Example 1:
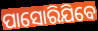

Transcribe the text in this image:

ପାସୋରିଯିବେ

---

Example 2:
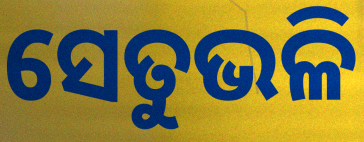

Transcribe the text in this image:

ସେତୁଭଳି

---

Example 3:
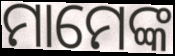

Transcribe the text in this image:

ମାମେଙ୍କ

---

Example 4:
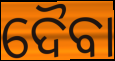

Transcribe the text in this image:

ଦୈବା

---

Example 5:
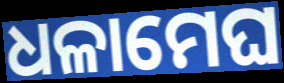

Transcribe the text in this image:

ଧଳାମେଘ